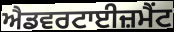
ਐਡਵਰਟਾਈਜ਼ਮੈਂਟ